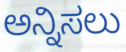
ಅನ್ನಿಸಲು